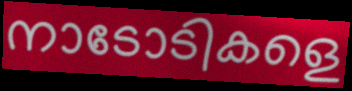
നാടോടികളെ